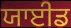
ਯਾਈਡ